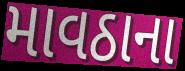
માવઠાના